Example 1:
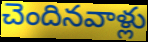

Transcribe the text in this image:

చెందినవాళ్లు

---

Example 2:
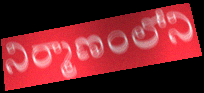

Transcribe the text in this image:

నిర్మాణంలోని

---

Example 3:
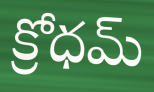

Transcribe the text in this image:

క్రోధమ్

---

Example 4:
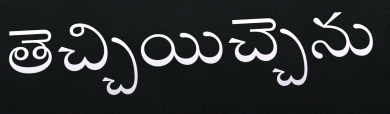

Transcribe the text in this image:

తెచ్చియిచ్చెను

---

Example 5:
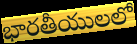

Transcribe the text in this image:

భారతీయులలో